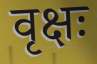
वृक्षः